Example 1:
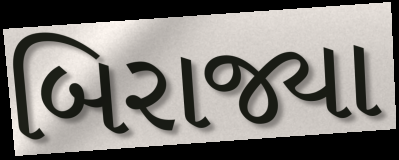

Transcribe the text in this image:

બિરાજ્યા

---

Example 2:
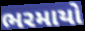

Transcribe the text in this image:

ભરમાયો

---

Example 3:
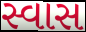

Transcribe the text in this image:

સ્વાસ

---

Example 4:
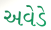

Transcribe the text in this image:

અવેડે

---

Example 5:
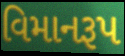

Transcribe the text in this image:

વિમાનરૂપ